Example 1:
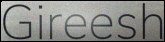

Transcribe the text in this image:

Gireesh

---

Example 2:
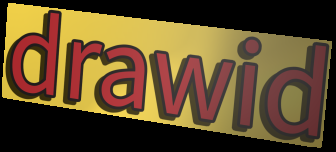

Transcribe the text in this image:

drawid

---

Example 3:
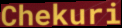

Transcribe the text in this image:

Chekuri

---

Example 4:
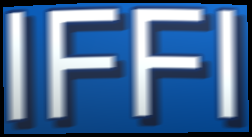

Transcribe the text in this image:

IFFI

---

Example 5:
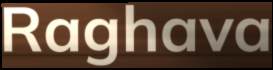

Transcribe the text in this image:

Raghava